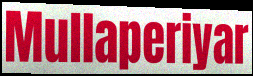
Mullaperiyar